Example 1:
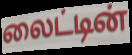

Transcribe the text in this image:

லைட்டின்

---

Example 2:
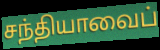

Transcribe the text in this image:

சந்தியாவைப்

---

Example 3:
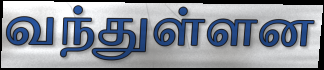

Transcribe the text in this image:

வந்துள்ளன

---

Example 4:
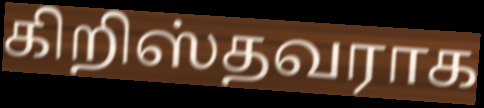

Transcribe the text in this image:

கிறிஸ்தவராக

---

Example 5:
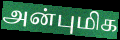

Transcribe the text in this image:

அன்புமிக